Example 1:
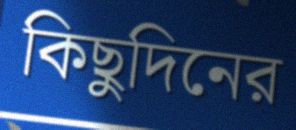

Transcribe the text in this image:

কিছুদিনের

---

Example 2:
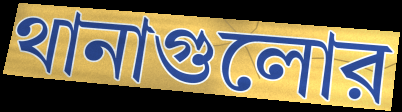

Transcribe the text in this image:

থানাগুলোর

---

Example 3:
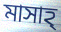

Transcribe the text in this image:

মাসাহ্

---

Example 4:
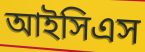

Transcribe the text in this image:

আইসিএস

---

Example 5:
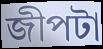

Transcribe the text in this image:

জীপটা